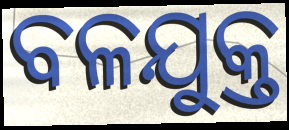
ବଳଯୁକ୍ତ